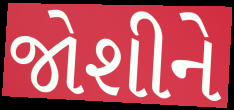
જોશીને